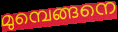
മുമ്പെങ്ങനെ